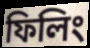
ফিলিং